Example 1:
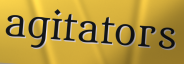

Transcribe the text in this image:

agitators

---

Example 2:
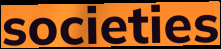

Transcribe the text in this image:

societies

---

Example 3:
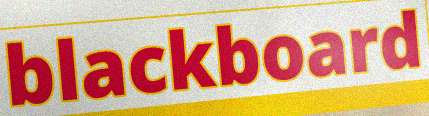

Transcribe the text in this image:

blackboard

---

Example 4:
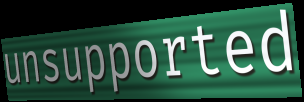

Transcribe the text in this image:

unsupported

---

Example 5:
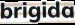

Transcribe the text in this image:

brigida